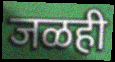
जळही